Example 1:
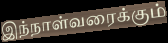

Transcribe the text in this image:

இந்நாள்வரைக்கும்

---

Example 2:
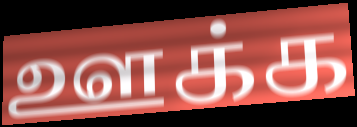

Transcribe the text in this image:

ஊக்க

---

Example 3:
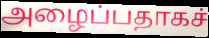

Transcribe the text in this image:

அழைப்பதாகச்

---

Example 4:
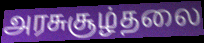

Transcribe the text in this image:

அரசுசூழ்தலை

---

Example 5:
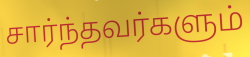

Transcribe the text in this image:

சார்ந்தவர்களும்